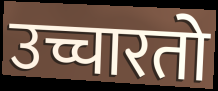
उच्चारतो